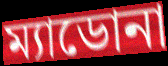
ম্যাডোনা